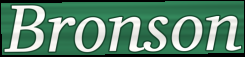
Bronson